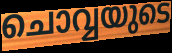
ചൊവ്വയുടെ